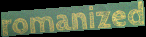
romanized